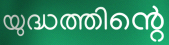
യുദ്ധത്തിന്റെ